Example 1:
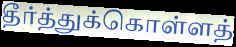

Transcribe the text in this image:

தீர்த்துக்கொள்ளத்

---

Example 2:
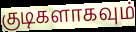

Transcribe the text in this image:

குடிகளாகவும்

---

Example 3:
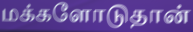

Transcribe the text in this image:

மக்களோடுதான்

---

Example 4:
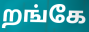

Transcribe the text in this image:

றங்கே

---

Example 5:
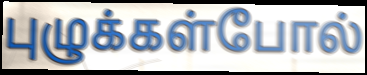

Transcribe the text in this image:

புழுக்கள்போல்